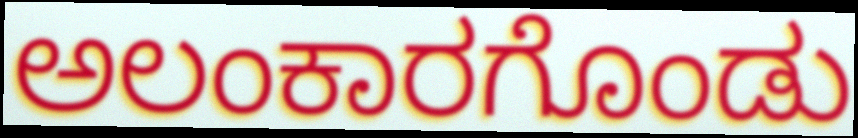
ಅಲಂಕಾರಗೊಂಡು